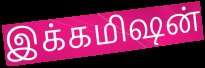
இக்கமிஷன்